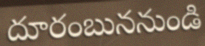
దూరంబుననుండి